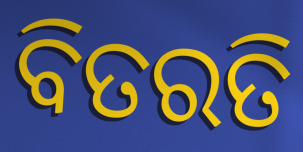
ବିତରତି